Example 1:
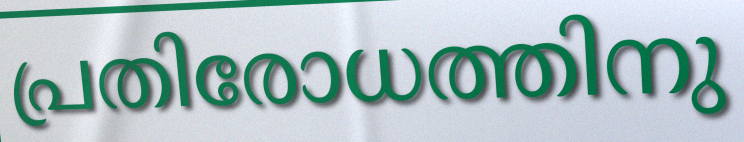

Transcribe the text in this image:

പ്രതിരോധത്തിനു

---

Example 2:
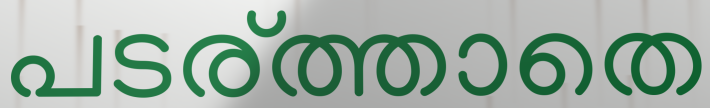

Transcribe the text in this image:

പടര്ത്താതെ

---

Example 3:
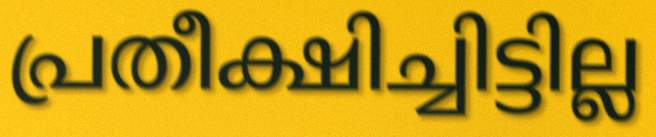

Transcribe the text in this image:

പ്രതീക്ഷിച്ചിട്ടില്ല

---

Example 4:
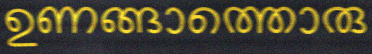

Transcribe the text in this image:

ഉണങ്ങാത്തൊരു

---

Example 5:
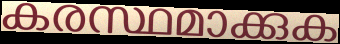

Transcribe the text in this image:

കരസ്ഥമാക്കുക